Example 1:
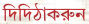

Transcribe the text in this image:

দিদিঠাকরুন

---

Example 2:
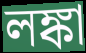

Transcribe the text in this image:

লঙ্কা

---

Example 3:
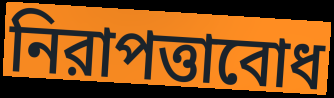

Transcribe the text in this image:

নিরাপত্তাবোধ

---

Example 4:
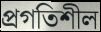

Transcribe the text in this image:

প্রগতিশীল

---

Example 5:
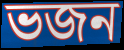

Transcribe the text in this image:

ভজন